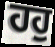
ਹਹੁ